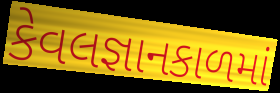
કેવલજ્ઞાનકાળમાં